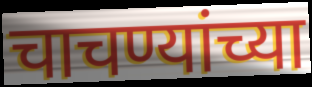
चाचण्यांच्या